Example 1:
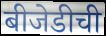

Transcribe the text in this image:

बीजेडीची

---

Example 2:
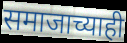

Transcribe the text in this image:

समाजाच्याही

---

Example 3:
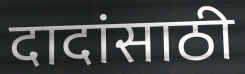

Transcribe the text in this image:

दादांसाठी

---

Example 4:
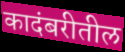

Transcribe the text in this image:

कादंबरीतील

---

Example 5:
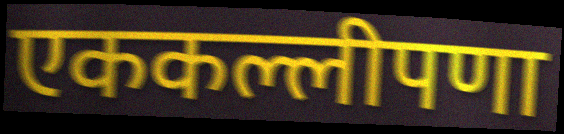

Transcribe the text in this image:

एककल्लीपणा